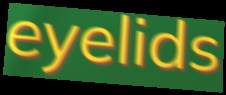
eyelids